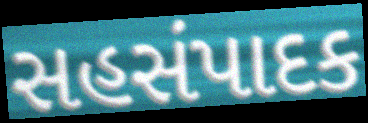
સહસંપાદક